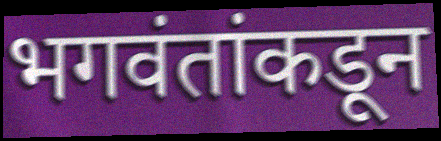
भगवंतांकडून